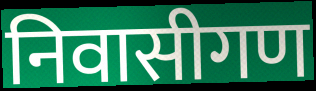
निवासीगण